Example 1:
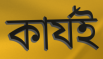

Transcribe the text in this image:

কাৰ্যই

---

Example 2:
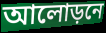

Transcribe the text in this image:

আলোড়নে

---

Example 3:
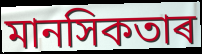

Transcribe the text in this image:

মানসিকতাৰ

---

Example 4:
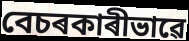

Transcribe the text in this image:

বেচৰকাৰীভাৱে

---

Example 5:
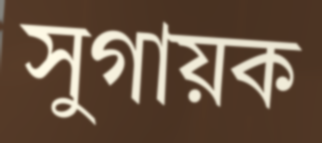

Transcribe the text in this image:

সুগায়ক